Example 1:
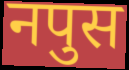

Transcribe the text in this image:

नपुस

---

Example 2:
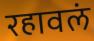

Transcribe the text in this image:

रहावलं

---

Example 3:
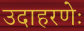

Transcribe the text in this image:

उदाहरणेः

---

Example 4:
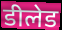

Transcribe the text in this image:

डीलेड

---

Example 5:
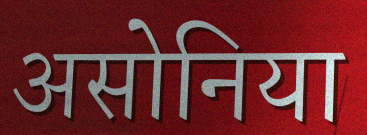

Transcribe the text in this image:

असोनिया